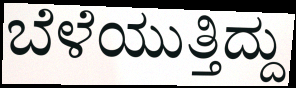
ಬೆಳೆಯುತ್ತಿದ್ದು